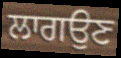
ਲਾਗਉਣ